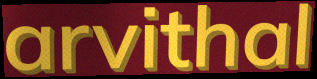
arvithal